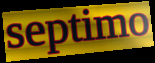
septimo